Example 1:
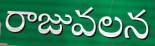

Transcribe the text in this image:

రాజువలన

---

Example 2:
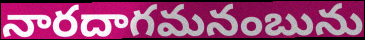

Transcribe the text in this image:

నారదాగమనంబును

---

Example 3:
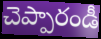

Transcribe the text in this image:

చెప్పారండీ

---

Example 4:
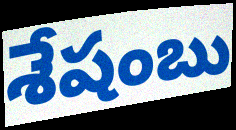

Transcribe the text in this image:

శేషంబు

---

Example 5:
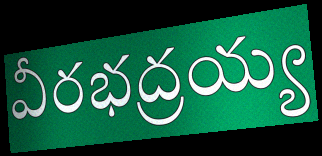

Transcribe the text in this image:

వీరభద్రయ్య